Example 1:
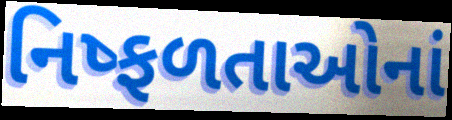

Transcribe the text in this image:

નિષ્ફળતાઓનાં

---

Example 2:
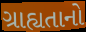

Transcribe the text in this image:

ગ્રાહ્યતાનો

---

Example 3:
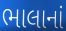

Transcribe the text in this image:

ભાલાનાં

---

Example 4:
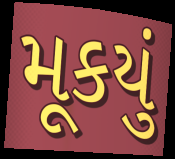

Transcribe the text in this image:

મૂકયું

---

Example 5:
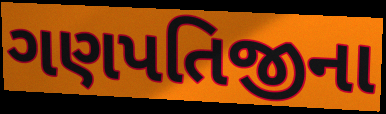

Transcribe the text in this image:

ગણપતિજીના